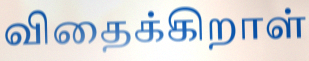
விதைக்கிறாள்